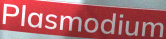
Plasmodium